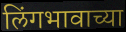
लिंगभावाच्या